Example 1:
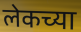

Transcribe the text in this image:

लेकच्या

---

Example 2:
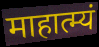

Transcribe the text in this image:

माहात्म्यं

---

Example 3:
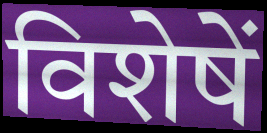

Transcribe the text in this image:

विशेषें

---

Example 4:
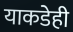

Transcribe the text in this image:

याकडेही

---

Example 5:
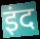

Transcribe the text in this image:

इंद